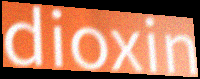
dioxin